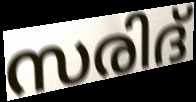
സരിദ്